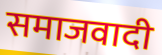
समाजवादी